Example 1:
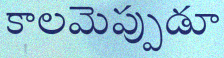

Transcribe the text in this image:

కాలమెప్పుడూ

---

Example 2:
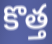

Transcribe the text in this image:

కొత్త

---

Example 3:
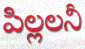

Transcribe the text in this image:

పిల్లలనీ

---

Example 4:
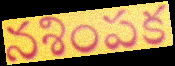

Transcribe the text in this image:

నశింపక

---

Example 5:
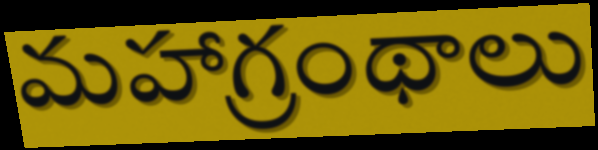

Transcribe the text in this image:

మహాగ్రంథాలు